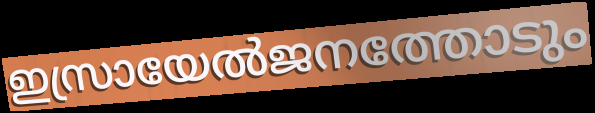
ഇസ്രായേൽജനത്തോടും